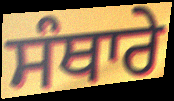
ਸੰਥਾਰੇ